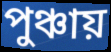
পুঞ্চায়